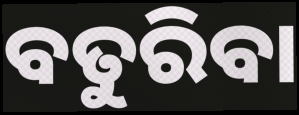
ବତୁରିବା